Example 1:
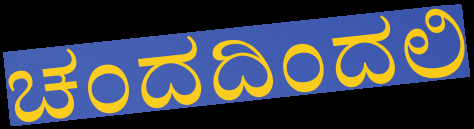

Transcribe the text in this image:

ಚಂದದಿಂದಲಿ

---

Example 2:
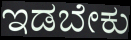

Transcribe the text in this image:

ಇಡಬೇಕು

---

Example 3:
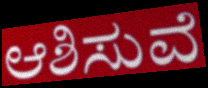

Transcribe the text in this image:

ಆಶಿಸುವೆ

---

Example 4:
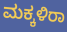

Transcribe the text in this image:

ಮಕ್ಕಳಿರಾ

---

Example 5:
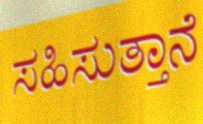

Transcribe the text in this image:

ಸಹಿಸುತ್ತಾನೆ